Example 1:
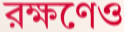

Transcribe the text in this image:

রক্ষণেও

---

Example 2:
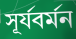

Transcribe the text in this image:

সূর্যবর্মন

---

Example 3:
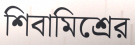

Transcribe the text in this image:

শিবামিশ্রের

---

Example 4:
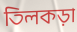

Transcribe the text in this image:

তিলকড়া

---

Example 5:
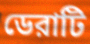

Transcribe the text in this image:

ডেরাটি